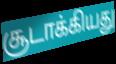
சூடாக்கியது